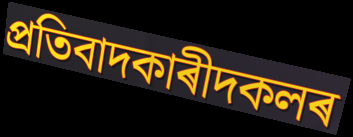
প্ৰতিবাদকাৰীদকলৰ